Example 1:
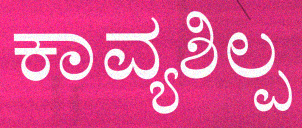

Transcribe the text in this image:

ಕಾವ್ಯಶಿಲ್ಪ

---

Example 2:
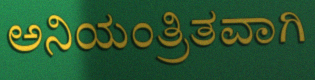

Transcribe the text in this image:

ಅನಿಯಂತ್ರಿತವಾಗಿ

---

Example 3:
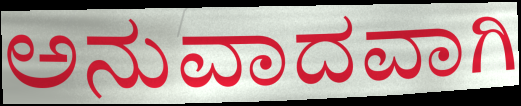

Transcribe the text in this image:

ಅನುವಾದವಾಗಿ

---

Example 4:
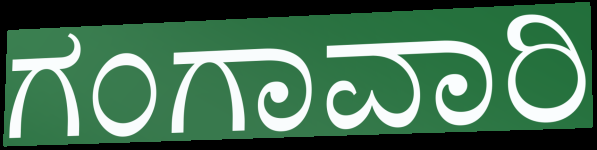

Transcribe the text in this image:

ಗಂಗಾವಾರಿ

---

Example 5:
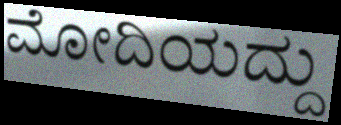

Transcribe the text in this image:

ಮೋದಿಯದ್ದು